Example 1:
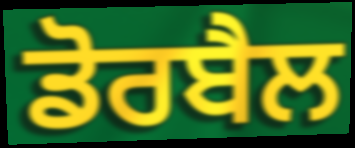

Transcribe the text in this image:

ਡੋਰਬੈਲ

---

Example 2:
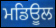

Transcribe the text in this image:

ਮਡਿਊਲ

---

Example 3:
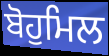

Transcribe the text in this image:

ਬੋਹੁਮਿਲ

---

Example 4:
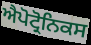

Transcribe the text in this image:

ਐਪੋਟ੍ਰੋਨਿਕਸ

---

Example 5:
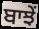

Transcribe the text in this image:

ਬਾਝੇਂ